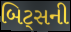
બિટ્સની